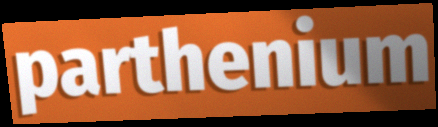
parthenium